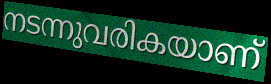
നടന്നുവരികയാണ്